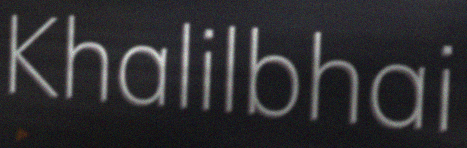
Khalilbhai